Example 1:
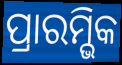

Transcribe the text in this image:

ପ୍ରାରମ୍ଭିକ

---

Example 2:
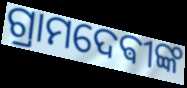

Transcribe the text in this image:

ଗ୍ରାମଦେଵୀଙ୍କ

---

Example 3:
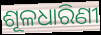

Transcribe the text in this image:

ଶୂଳଧାରିଣୀ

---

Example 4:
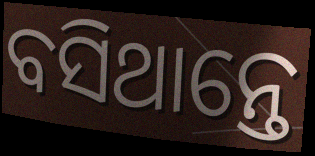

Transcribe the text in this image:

ବସିଥାନ୍ତେ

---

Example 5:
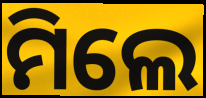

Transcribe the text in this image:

ମିଲେ